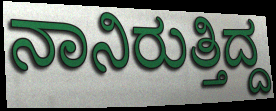
ನಾನಿರುತ್ತಿದ್ದ